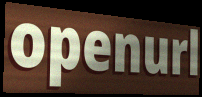
openurl